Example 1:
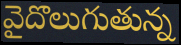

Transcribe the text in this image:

వైదొలుగుతున్న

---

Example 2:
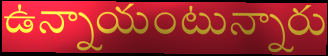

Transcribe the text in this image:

ఉన్నాయంటున్నారు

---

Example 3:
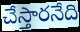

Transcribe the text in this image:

చేస్తారనేది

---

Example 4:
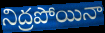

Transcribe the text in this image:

నిద్రపోయినా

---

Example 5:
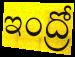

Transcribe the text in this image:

ఇంద్రో